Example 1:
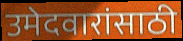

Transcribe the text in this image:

उमेदवारांसाठी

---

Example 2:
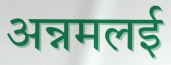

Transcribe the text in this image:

अन्नमलई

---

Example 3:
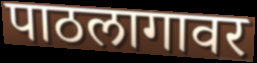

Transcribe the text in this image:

पाठलागावर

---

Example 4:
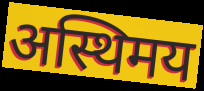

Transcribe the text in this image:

अस्थिमय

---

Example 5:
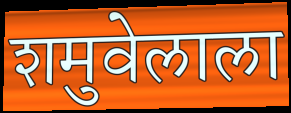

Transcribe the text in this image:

शमुवेलाला